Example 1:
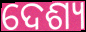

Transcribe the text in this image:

ଦେଶ୍ୟ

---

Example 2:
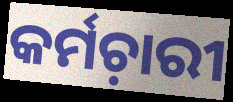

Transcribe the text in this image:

କର୍ମଚ଼ାରୀ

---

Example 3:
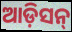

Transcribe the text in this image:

ଆଡ଼ିସନ୍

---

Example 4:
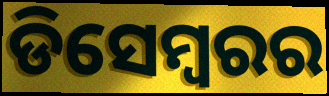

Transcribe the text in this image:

ଡିସେମ୍ୱରର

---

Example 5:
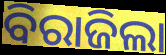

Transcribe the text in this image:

ବିରାଜିଲା